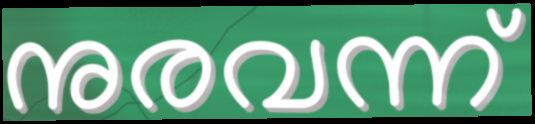
നുരവന്ന്